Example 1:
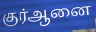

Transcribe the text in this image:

குர்ஆனை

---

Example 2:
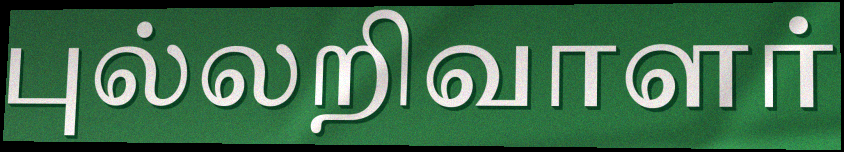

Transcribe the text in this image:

புல்லறிவாளர்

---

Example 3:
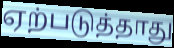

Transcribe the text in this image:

ஏற்படுத்தாது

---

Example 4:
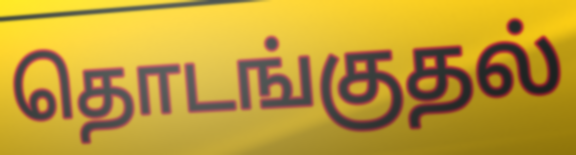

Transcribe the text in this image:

தொடங்குதல்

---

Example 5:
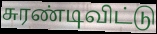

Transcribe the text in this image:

சுரண்டிவிட்டு